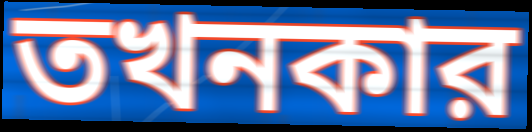
তখনকার